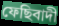
ফেছিবাদী